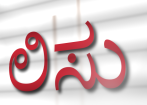
ಲಿಸು